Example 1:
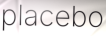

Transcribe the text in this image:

placebo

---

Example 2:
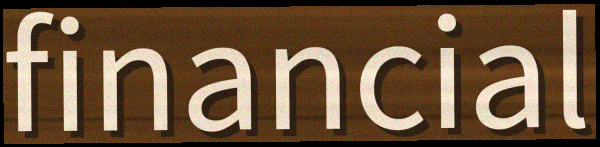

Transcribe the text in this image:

financial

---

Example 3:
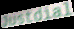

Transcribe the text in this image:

Justdial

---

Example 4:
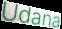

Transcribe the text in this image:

Udana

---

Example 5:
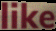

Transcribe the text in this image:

like